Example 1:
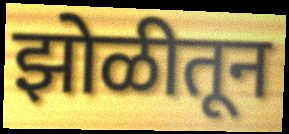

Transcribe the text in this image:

झोळीतून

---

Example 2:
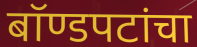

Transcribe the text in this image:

बॉण्डपटांचा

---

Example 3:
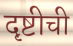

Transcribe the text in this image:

दृष्टीची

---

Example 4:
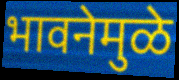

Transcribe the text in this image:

भावनेमुळे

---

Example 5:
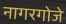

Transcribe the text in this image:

नागरगोजे